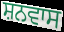
ਸ਼ਨਵਾਸ